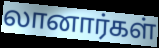
லானார்கள்